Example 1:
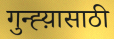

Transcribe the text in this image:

गुन्ह्य़ासाठी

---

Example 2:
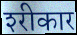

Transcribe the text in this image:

श्रीकार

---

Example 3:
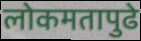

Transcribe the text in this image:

लोकमतापुढे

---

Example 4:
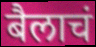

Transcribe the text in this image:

बैलाचं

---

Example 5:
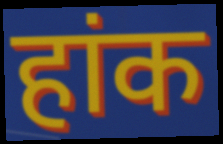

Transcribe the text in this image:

हांक